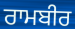
ਰਾਮਬੀਰ